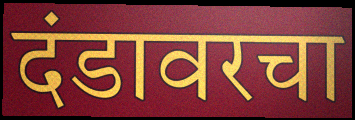
दंडावरचा